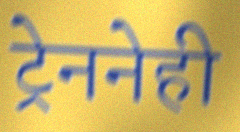
ट्रेननेही